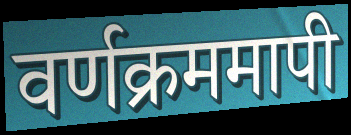
वर्णक्रममापी